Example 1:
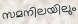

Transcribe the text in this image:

സമനിലയിലും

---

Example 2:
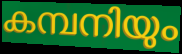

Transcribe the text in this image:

കമ്പനിയും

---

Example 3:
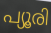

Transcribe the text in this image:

പ്യൂരി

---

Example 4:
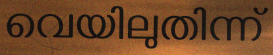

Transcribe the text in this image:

വെയിലുതിന്ന്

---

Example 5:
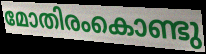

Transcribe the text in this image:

മോതിരംകൊണ്ടു